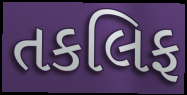
તકલિફ